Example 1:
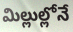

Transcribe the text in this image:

మిల్లుల్లోనే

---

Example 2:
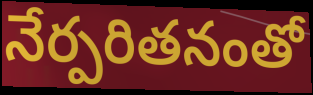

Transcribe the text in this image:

నేర్పరితనంతో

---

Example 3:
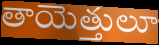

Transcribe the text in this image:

తాయెత్తులూ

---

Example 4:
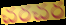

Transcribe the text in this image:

చరచర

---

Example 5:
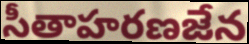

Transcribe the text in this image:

సీతాహరణజేన